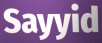
Sayyid